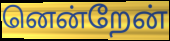
னென்றேன்